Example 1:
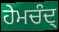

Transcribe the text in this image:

ਹੇਮਚੰਦ੍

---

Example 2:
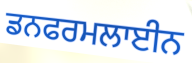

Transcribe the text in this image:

ਡਨਫਰਮਲਾਈਨ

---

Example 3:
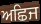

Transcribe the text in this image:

ਅਛਿਜ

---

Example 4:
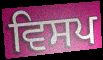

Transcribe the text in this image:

ਵਿਸਪ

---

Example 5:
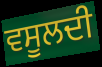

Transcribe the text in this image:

ਵਸੂਲਦੀ